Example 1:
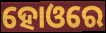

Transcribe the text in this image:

ହୋଓରେ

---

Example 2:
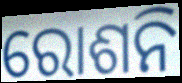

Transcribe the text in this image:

ରୋଶନି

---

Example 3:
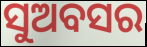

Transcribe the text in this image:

ସୁଅବସର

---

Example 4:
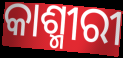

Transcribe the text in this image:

କାଶ୍ମୀରୀ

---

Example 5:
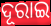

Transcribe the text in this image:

ଦୂରାଇ